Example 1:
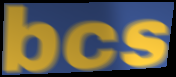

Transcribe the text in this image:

bcs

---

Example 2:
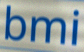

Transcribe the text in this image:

bmi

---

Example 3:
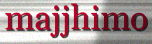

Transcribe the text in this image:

majjhimo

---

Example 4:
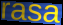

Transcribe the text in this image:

rasa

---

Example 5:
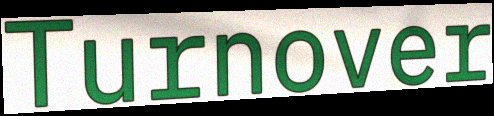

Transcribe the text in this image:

Turnover